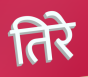
तिरे